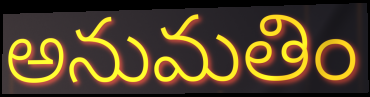
అనుమతిం